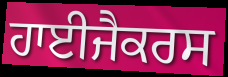
ਹਾਈਜੈਕਰਸ